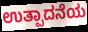
ಉತ್ಪಾದನೆಯ